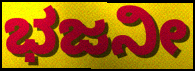
ಭಜನೀ